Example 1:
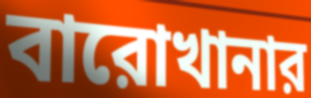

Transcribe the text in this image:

বারোখানার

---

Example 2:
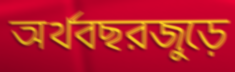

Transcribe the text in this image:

অর্থবছরজুড়ে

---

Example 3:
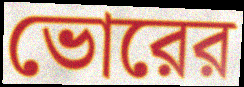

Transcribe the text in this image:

ভোরের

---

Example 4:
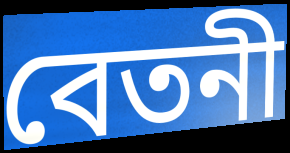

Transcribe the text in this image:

বেতনী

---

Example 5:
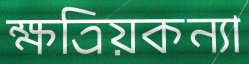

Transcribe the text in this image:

ক্ষত্রিয়কন্যা